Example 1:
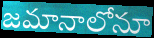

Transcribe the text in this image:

జమానాలోనూ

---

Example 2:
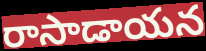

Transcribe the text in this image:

రాసాడాయన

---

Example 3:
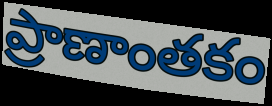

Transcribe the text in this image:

ప్రాణాంతకం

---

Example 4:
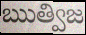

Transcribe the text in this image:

ఋత్విజ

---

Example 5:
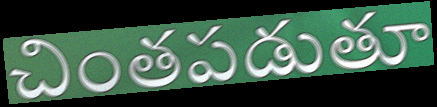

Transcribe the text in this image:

చింతపడుతూ